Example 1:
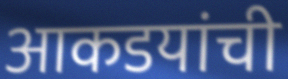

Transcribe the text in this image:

आकडयांची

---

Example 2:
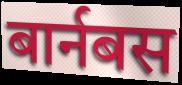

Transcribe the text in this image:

बार्नबस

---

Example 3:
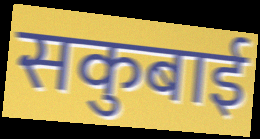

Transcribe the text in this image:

सकुबाई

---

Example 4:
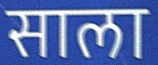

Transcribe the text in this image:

साला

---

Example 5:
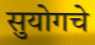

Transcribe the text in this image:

सुयोगचे